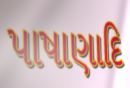
પાષાણાદિ